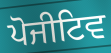
ਪੋਜੀਟਿਵ